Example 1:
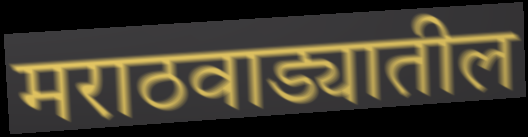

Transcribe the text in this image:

मराठवाड्यातील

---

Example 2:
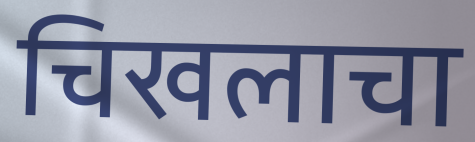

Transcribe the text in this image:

चिखलाचा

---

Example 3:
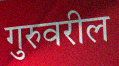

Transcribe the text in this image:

गुरुवरील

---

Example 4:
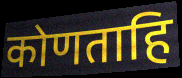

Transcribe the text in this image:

कोणताहि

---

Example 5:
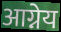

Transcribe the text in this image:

आग्नेय